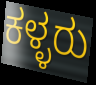
ಕಳ್ಳರು